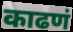
काढणं